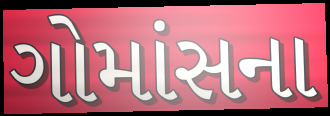
ગોમાંસના